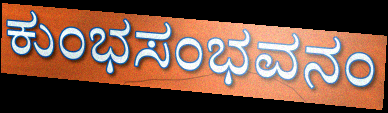
ಕುಂಭಸಂಭವನಂ